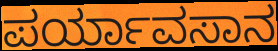
ಪರ್ಯಾವಸಾನ